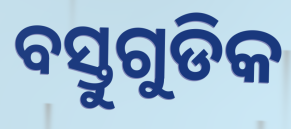
ବସ୍ତୁଗୁଡିକ